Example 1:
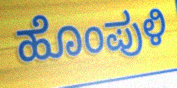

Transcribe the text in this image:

ಹೊಂಪುಳಿ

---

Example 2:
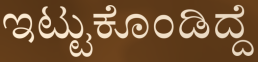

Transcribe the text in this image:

ಇಟ್ಟುಕೊಂಡಿದ್ದೆ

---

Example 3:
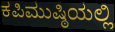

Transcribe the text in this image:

ಕಪಿಮುಷ್ಠಿಯಲ್ಲಿ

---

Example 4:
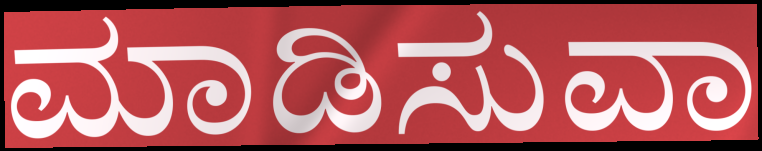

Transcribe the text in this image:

ಮಾಡಿಸುವಾ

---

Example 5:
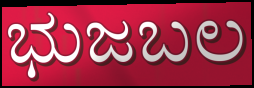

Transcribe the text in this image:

ಭುಜಬಲ